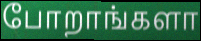
போறாங்களா